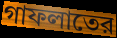
গাফলাতের